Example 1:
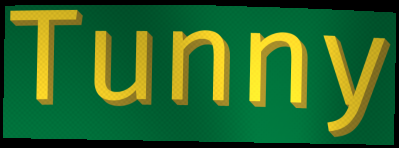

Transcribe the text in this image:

Tunny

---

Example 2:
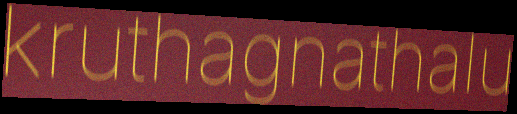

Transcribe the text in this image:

kruthagnathalu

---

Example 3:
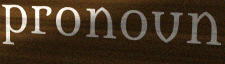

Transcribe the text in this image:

pronoun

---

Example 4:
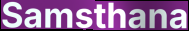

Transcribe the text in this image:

Samsthana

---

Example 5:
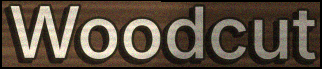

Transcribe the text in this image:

Woodcut